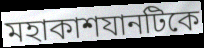
মহাকাশযানটিকে